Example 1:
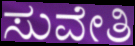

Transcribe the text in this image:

ಸುವೇತಿ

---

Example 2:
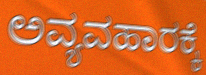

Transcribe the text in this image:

ಅವ್ಯವಹಾರಕ್ಕೆ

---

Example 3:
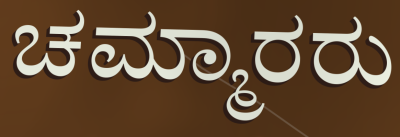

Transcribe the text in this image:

ಚಮ್ಮಾರರು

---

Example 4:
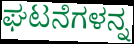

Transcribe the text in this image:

ಘಟನೆಗಳನ್ನ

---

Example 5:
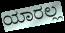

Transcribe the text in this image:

ಯಾರಲ್ಲ